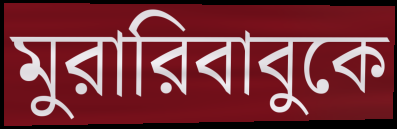
মুরারিবাবুকে